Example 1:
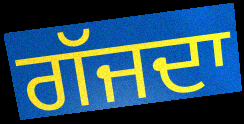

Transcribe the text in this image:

ਗੱਜਦਾ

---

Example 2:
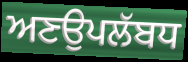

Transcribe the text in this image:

ਅਣਉਪਲੱਬਧ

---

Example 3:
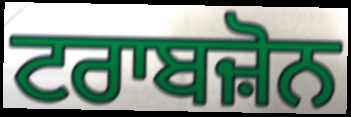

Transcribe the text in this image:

ਟਰਾਬਜ਼ੋਨ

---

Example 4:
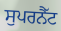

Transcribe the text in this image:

ਸੁਪਰਨੈੱਟ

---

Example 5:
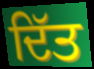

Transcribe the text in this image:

ਦਿੱਤ